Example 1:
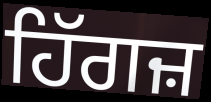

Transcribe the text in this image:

ਹਿੱਗਜ਼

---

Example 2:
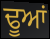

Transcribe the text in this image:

ਢੂਆਂ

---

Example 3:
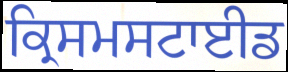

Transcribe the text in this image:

ਕ੍ਰਿਸਮਸਟਾਈਡ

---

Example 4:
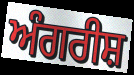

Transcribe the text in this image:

ਅੰਗਰੀਸ਼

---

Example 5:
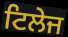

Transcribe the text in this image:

ਟਿਲੇਜ